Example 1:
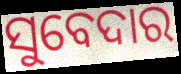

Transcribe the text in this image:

ସୁବେଦାର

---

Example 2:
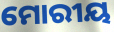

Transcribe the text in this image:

ମୋରୀୟ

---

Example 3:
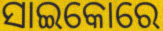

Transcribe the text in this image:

ସାଇକୋରେ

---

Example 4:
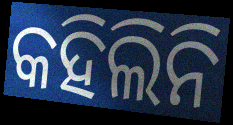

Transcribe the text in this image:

କହିଲିନି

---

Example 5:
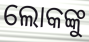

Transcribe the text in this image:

ଲୋକଙ୍କୁ